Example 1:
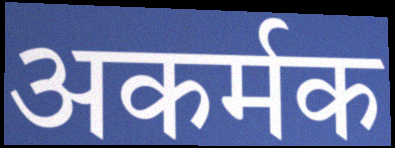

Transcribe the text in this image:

अकर्मक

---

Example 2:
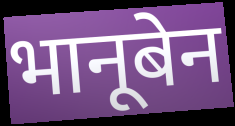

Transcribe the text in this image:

भानूबेन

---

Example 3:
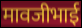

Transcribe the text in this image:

मावजीभाई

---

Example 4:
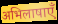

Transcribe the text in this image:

अभिलाषाएँ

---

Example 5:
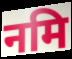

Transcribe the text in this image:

नमि